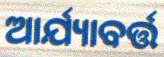
ଆର୍ଯ୍ୟାବର୍ତ୍ତ